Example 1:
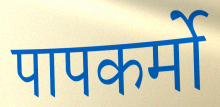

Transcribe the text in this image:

पापकर्मो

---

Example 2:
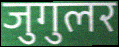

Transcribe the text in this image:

जुगुलर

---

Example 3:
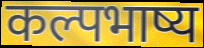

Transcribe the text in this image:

कल्पभाष्य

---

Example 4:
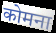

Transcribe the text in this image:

कोमना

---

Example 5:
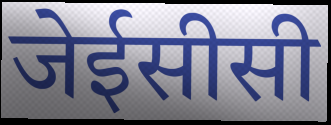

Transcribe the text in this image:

जेईसीसी